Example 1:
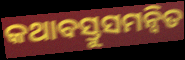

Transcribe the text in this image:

କଥାବସ୍ତୁସମନ୍ୱିତ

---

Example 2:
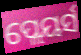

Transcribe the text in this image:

ପ୍ଲେୟର୍ସ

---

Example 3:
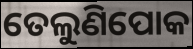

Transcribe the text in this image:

ତେଲୁଣିପୋକ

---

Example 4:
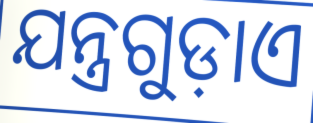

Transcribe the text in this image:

ଯନ୍ତ୍ରଗୁଡ଼ାଏ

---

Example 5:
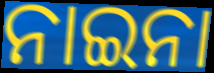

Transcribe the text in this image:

ନାଇନା